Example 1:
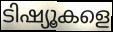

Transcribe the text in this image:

ടിഷ്യൂകളെ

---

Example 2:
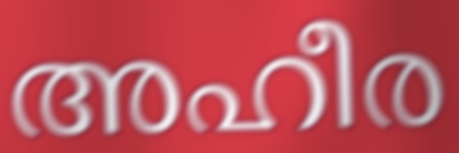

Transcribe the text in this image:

അഹീര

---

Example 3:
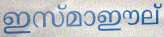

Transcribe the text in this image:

ഇസ്മാഈല്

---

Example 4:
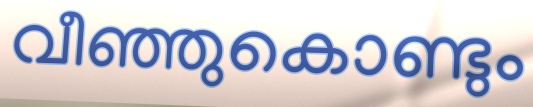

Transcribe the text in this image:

വീഞ്ഞുകൊണ്ടും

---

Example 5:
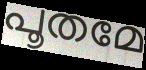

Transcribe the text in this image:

പൂതമേ